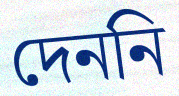
দেননি